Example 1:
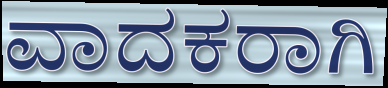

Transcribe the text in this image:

ವಾದಕರಾಗಿ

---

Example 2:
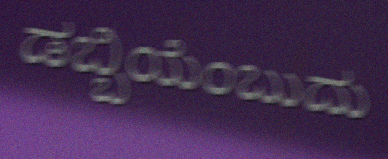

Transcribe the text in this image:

ಡಬ್ಬಿಯೆಂಬುದು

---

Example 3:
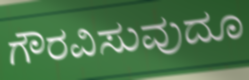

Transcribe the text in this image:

ಗೌರವಿಸುವುದೂ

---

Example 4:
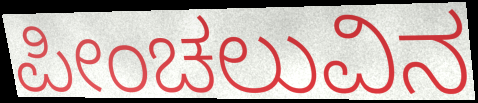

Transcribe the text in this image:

ಪೀಂಚಲುವಿನ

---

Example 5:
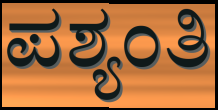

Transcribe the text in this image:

ಪಶ್ಯಂತಿ